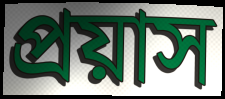
প্ৰয়াস